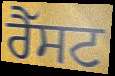
ਰੈੱਸਟ